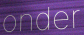
onder